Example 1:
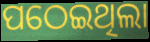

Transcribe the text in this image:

ପଠେଇଥିଲା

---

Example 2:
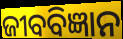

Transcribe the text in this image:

ଜୀବବିଜ୍ଞାନ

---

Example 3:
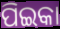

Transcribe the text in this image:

ପିଇକା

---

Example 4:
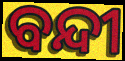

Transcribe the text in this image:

ବନ୍ଦୀ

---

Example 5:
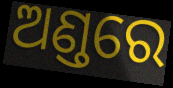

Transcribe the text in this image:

ଅଣ୍ଡରେ